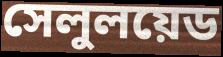
সেলুলয়েড